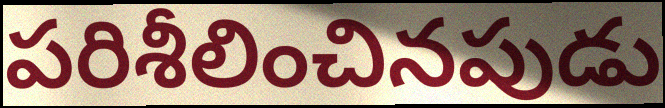
పరిశీలించినపుడు